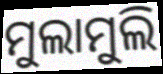
ମୁଲାମୁଲି